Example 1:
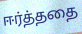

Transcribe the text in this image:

ஈர்த்ததை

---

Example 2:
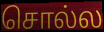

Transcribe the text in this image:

சொல்ல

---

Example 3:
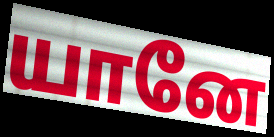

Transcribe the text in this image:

யானே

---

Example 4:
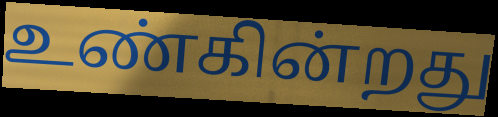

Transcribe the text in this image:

உண்கின்றது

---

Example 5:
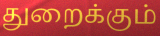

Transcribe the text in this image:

துறைக்கும்